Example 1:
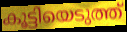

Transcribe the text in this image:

കൂട്ടിയെടുത്ത്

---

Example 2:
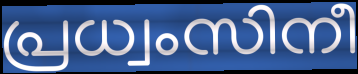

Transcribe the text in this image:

പ്രധ്വംസിനീ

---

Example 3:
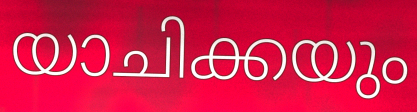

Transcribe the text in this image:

യാചിക്കയും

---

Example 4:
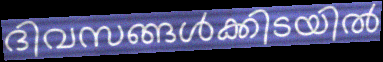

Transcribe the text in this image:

ദിവസങ്ങൾക്കിടയിൽ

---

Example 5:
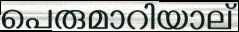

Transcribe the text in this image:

പെരുമാറിയാല്